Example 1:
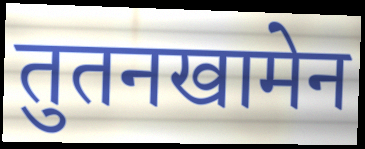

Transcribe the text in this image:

तुतनखामेन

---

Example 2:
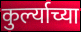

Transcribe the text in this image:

कुर्ल्याच्या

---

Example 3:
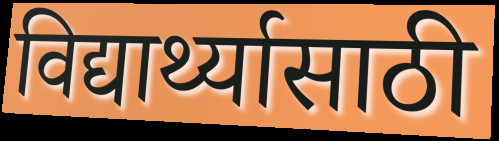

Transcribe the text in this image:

विद्यार्थ्यासाठी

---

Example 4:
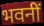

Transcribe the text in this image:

भवनीं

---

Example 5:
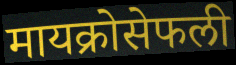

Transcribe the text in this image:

मायक्रोसेफली